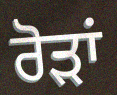
ਰੋੜਾਂ